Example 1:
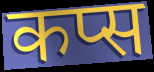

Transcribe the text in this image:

कप्स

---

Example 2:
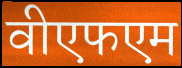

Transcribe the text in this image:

वीएफएम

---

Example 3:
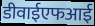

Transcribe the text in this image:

डीवाईएफआई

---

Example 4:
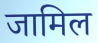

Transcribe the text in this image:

जामिल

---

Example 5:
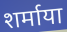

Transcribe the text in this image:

शर्माया